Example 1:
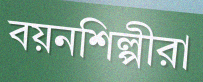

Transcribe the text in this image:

বয়নশিল্পীরা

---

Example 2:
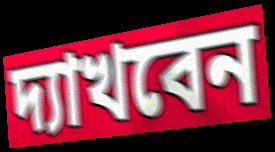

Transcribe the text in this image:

দ্যাখবেন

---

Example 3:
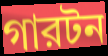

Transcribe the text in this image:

গারটন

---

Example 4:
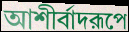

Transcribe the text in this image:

আশীর্বাদরূপে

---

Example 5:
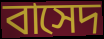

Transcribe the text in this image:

বাসেদ